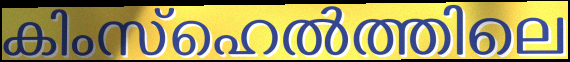
കിംസ്ഹെൽത്തിലെ